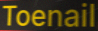
Toenail